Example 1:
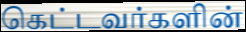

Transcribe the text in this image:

கெட்டவர்களின்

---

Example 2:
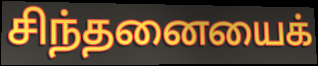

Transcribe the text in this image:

சிந்தனையைக்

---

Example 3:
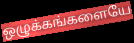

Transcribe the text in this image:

ஒழுக்கங்களையே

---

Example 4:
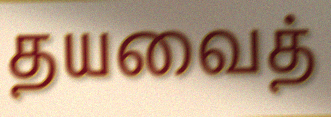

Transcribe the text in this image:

தயவைத்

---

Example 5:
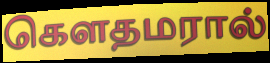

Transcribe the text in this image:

கௌதமரால்